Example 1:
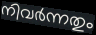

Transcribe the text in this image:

നിവർന്നതും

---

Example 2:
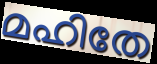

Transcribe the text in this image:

മഹിതേ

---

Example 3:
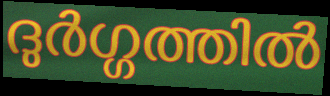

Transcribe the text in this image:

ദുർഗ്ഗത്തിൽ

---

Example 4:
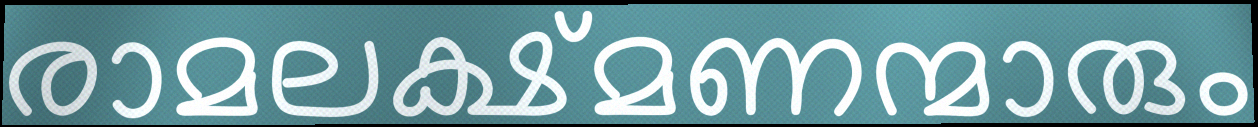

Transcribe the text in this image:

രാമലക്ഷ്മണന്മാരും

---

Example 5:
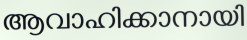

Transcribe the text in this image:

ആവാഹിക്കാനായി